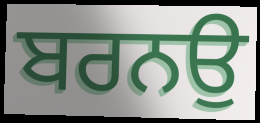
ਬਰਨਉ